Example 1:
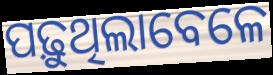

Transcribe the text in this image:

ପଢ଼ୁଥିଲାବେଳେ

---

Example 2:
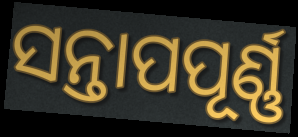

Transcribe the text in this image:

ସନ୍ତାପପୂର୍ଣ୍ଣ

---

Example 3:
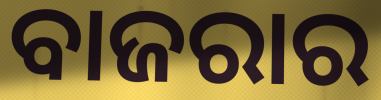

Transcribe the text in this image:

ବାଜରାର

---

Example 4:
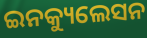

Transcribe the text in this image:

ଇନକ୍ୟୁଲେସନ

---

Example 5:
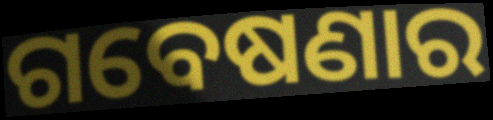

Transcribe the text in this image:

ଗବେଷଣାର